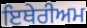
ਇਥੇਰੀਅਮ